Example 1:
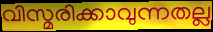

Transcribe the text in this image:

വിസ്മരിക്കാവുന്നതല്ല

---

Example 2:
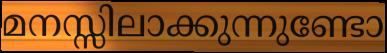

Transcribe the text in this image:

മനസ്സിലാക്കുന്നുണ്ടോ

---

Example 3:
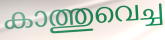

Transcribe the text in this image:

കാത്തുവെച്ച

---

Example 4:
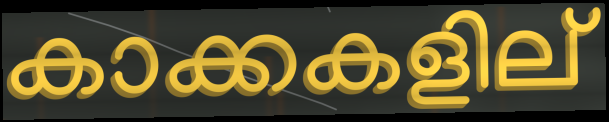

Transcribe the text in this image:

കാക്കകളില്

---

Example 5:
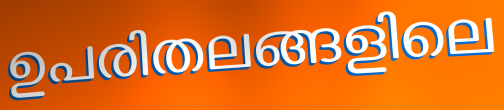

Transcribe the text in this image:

ഉപരിതലങ്ങളിലെ